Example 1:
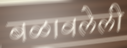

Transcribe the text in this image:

बळावलेली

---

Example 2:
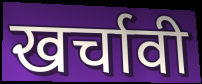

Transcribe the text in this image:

खर्चावी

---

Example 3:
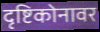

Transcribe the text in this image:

दृष्टिकोनावर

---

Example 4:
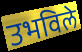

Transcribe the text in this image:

उभविले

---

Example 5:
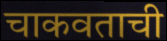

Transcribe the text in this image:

चाकवताची